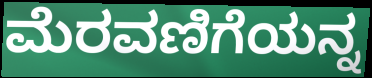
ಮೆರವಣಿಗೆಯನ್ನ